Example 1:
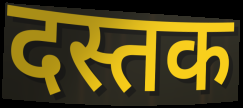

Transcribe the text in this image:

दस्तक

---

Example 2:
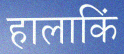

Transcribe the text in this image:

हालाकिं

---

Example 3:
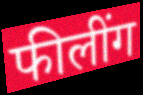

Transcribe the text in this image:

फीलींग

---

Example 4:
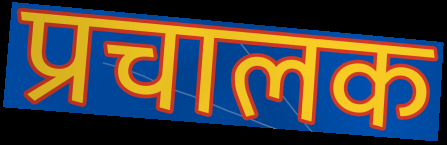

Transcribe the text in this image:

प्रचालक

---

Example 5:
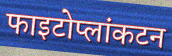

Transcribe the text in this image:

फाइटोप्लांकटन